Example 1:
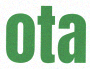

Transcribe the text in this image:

ota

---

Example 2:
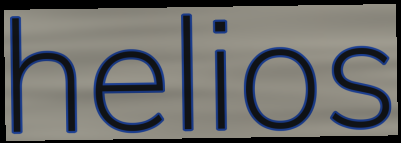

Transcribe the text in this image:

helios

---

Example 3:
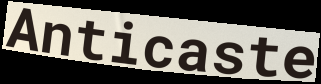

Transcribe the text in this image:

Anticaste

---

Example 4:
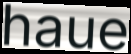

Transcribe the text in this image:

haue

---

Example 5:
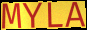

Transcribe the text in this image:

MYLA